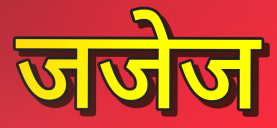
जजेज